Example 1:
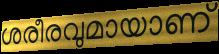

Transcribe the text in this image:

ശരീരവുമായാണ്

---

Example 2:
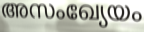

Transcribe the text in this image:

അസംഖ്യേയം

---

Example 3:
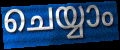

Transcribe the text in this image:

ചെയ്യാം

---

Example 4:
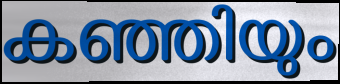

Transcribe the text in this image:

കഞ്ഞിയും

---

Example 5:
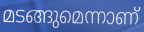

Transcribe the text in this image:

മടങ്ങുമെന്നാണ്